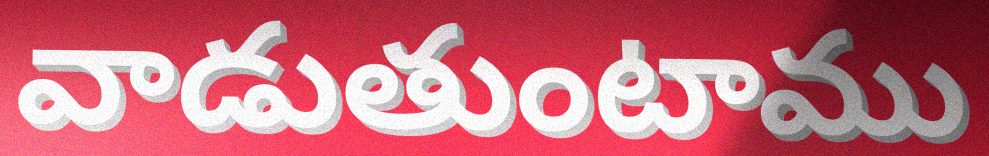
వాడుతుంటాము